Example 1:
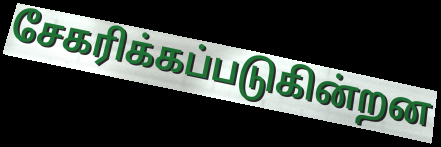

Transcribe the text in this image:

சேகரிக்கப்படுகின்றன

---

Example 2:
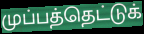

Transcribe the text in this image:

முப்பத்தெட்டுக்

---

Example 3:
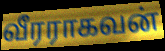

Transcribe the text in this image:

வீரராகவன்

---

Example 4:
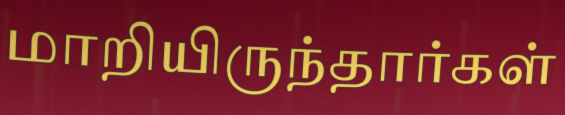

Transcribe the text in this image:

மாறியிருந்தார்கள்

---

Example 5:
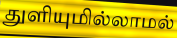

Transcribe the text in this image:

துளியுமில்லாமல்